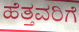
ಹೆತ್ತವರಿಗೆ